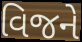
વિજને